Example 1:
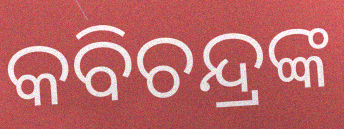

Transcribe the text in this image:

କବିଚନ୍ଦ୍ରଙ୍କ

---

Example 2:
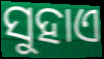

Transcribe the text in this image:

ସୁହାଏ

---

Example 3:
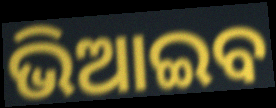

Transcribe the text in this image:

ଭିଆଇବ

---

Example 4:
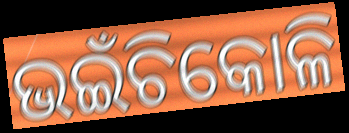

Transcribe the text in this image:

ଭଇଁଚିକୋଳି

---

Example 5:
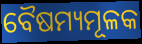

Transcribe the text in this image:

ବୈଷମ୍ୟମୂଳକ